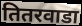
तितरवाडा